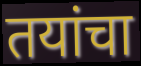
तयांचा